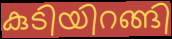
കുടിയിറങ്ങി